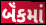
બૅંકમાં